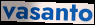
vasanto